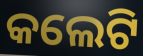
କଲେଟି